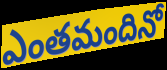
ఎంతమందినో